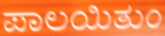
ಪಾಲಯಿತುಂ